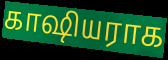
காஷியராக